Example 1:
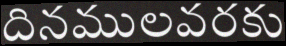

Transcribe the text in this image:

దినములవరకు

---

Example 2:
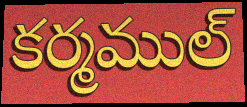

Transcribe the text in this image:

కర్మముల్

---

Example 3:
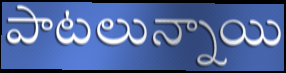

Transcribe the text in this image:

పాటలున్నాయి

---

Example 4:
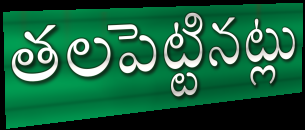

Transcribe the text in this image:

తలపెట్టినట్లు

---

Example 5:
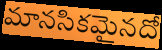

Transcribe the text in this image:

మానసికమైనదో